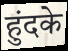
हुंदके